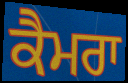
ਕੈਮਰਾ